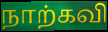
நாற்கவி